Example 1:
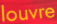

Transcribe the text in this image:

louvre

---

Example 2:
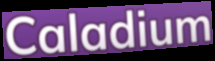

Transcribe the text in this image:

Caladium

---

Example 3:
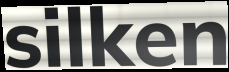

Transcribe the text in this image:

silken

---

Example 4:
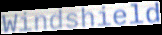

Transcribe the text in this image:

Windshield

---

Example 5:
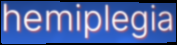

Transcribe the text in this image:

hemiplegia